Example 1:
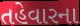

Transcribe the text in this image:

તહેવારના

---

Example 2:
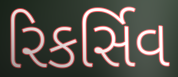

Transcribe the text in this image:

રિકર્સિવ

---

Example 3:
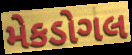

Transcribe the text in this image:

મેકડોગલ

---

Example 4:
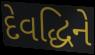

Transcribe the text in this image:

દેવદ્ધિને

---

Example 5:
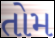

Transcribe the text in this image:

તોમ